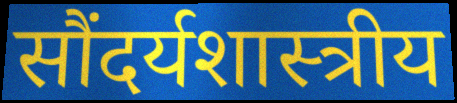
सौंदर्यशास्त्रीय